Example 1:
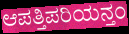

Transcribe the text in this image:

ಆಪತ್ತಿಪರಿಯನ್ತಂ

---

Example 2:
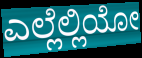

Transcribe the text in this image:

ಎಲ್ಲೆಲ್ಲಿಯೋ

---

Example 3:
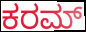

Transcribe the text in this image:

ಕರಮ್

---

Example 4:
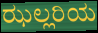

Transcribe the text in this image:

ಝಲ್ಲರಿಯ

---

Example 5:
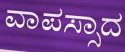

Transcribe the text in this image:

ವಾಪಸ್ಸಾದ